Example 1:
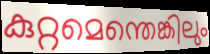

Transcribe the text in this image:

കുറ്റമെന്തെങ്കിലും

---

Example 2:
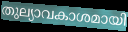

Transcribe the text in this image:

തുല്യാവകാശമായി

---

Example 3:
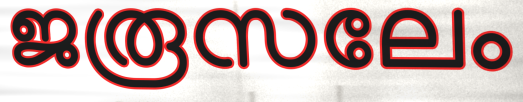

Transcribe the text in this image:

ജരൂസലേം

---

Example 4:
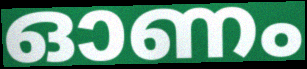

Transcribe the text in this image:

ഓണം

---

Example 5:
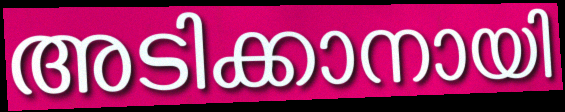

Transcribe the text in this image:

അടിക്കാനായി